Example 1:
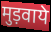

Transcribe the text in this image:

मुड़वाये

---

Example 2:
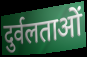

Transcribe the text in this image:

दुर्वलताओं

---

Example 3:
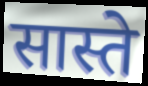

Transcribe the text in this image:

सास्ते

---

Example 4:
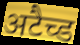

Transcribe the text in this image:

अटैच्ड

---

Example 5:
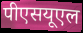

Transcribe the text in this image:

पीएसयूएल